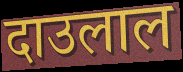
दाउलाल